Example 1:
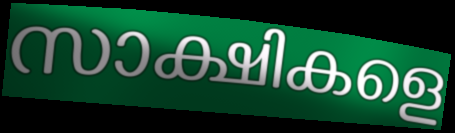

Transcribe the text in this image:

സാക്ഷികളെ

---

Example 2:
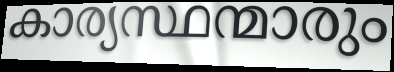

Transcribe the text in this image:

കാര്യസ്ഥന്മാരും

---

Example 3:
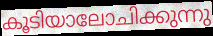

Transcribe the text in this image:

കൂടിയാലോചിക്കുന്നു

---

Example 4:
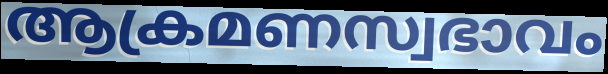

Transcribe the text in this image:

ആക്രമണസ്വഭാവം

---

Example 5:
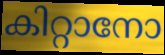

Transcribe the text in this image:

കിറ്റാനോ